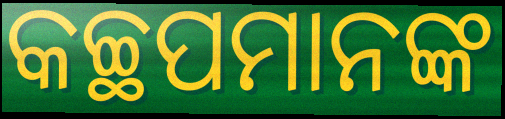
କଚ୍ଛପମାନଙ୍କ